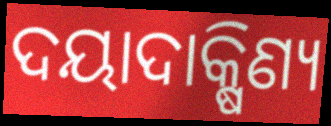
ଦୟାଦାକ୍ଷିଣ୍ୟ